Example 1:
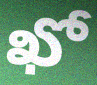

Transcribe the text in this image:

ఖో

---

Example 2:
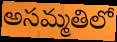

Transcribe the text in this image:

అసమ్మతిలో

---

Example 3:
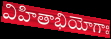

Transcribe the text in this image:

విహితాభియోగాః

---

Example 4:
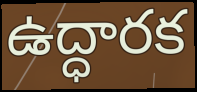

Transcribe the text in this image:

ఉద్ధారక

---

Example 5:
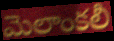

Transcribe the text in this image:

మెలాంకలీ